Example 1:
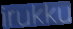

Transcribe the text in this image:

irukku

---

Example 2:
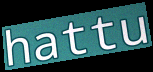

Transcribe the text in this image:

hattu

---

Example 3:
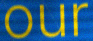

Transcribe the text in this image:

our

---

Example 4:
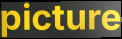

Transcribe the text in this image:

picture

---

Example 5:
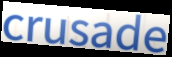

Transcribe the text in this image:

crusade